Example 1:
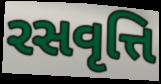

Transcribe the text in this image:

રસવૃત્તિ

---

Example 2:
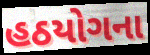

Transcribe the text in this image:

હઠયોગના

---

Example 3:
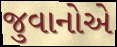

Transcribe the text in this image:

જુવાનોએ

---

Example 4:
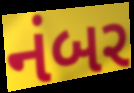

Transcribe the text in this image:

નંબર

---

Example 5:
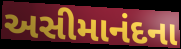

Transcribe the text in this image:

અસીમાનંદના